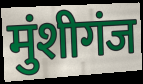
मुंशीगंज